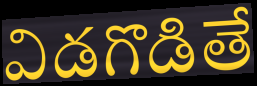
విడగొడితే